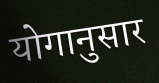
योगानुसार